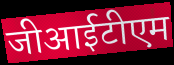
जीआईटीएम